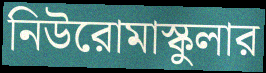
নিউরোমাস্কুলার